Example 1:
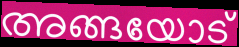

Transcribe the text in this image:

അങ്ങയോട്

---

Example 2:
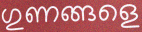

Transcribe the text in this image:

ഗുണങ്ങളെ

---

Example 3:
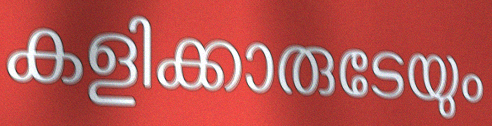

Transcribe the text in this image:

കളിക്കാരുടേയും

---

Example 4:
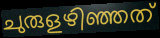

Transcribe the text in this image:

ചുരുളഴിഞ്ഞത്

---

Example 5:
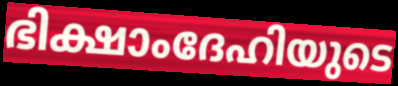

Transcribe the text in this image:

ഭിക്ഷാംദേഹിയുടെ